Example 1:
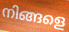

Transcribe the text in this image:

നിങ്ങളെ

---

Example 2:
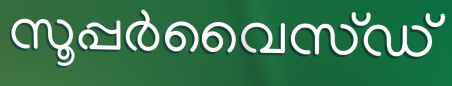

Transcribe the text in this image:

സൂപ്പർവൈസ്ഡ്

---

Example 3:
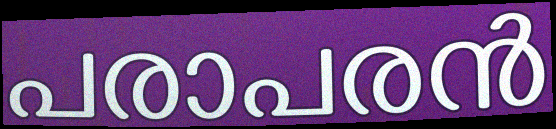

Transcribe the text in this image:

പരാപരൻ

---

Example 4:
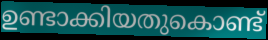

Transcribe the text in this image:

ഉണ്ടാക്കിയതുകൊണ്ട്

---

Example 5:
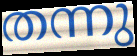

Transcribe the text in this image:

തന്നു